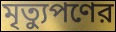
মৃত্যুপণের